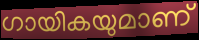
ഗായികയുമാണ്